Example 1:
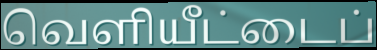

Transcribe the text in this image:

வெளியீட்டைப்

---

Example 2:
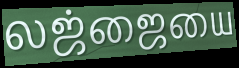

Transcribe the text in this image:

லஜ்ஜையை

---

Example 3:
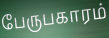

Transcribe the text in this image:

பேருபகாரம்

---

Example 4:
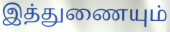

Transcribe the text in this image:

இத்துணையும்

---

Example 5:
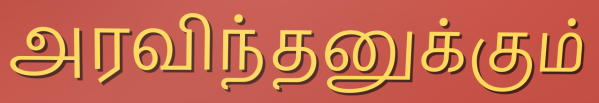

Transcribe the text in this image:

அரவிந்தனுக்கும்